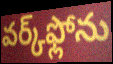
వర్క్‌ఫ్లోను